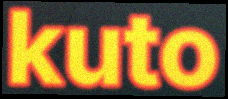
kuto